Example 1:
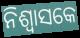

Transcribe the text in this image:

ନିଶ୍ୱାସକେ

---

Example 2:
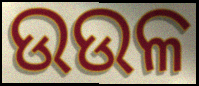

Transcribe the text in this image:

ଉଉଳ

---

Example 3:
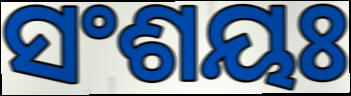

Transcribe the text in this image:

ସଂଶୟଃ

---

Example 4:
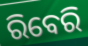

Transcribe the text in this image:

ରିବେରି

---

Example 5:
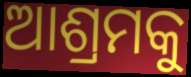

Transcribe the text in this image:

ଆଶ୍ରମକୁ